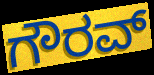
ಗೌರವ್